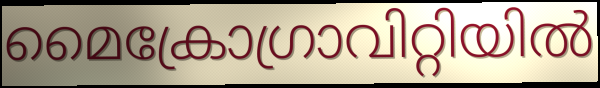
മൈക്രോഗ്രാവിറ്റിയിൽ